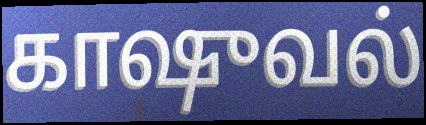
காஷுவல்